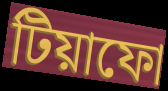
টিয়াফো